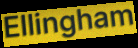
Ellingham